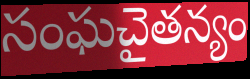
సంఘచైతన్యం